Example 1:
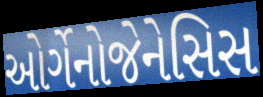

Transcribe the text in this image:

ઓર્ગેનોજેનેસિસ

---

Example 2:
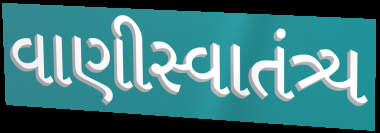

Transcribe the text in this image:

વાણીસ્વાતંત્ર્ય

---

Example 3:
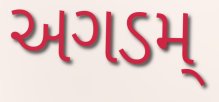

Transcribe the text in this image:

અગડમ્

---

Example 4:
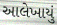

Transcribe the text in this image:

આલેખાયું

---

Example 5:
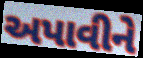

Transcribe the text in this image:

અપાવીને